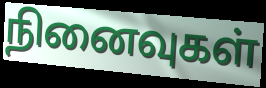
நினைவுகள்